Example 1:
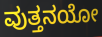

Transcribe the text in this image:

ವುತ್ತನಯೋ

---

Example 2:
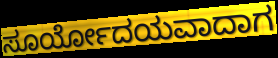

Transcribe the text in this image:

ಸೂರ್ಯೋದಯವಾದಾಗ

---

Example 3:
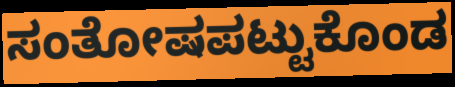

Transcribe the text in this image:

ಸಂತೋಷಪಟ್ಟುಕೊಂಡ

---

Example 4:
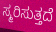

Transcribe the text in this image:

ಸ್ಮರಿಸುತ್ತದೆ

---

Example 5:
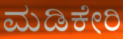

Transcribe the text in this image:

ಮಡಿಕೇರಿ